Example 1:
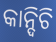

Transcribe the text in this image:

କାନ୍ଦିଚି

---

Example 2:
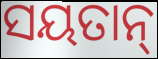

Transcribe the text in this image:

ସୟତାନ୍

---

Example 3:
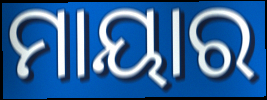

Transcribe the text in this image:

ମାୟାର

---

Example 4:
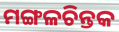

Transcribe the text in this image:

ମଙ୍ଗଳଚିନ୍ତକ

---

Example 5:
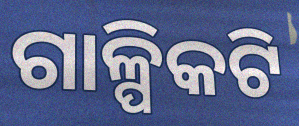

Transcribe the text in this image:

ଗାଳ୍ପିକଟି